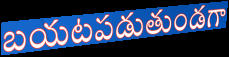
బయటపడుతుండగా